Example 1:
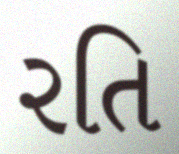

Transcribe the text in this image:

રતિ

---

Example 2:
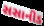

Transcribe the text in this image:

સસાનીડ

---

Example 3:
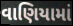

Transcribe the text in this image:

વાણિયામાં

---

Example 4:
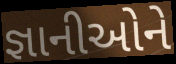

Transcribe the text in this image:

જ્ઞાનીઓને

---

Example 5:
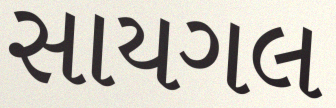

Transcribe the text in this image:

સાયગલ